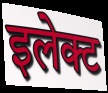
इलेक्ट